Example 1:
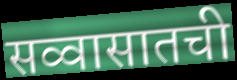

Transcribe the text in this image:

सव्वासातची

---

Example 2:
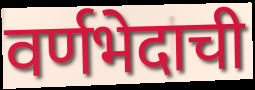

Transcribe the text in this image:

वर्णभेदाची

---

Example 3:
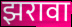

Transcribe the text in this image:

झरावा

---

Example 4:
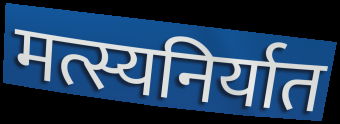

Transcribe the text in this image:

मत्स्यनिर्यात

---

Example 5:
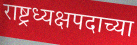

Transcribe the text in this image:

राष्ट्रध्यक्षपदाच्या